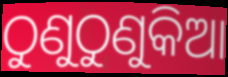
ଠୁଣୁଠୁଣୁକିଆ